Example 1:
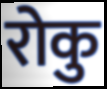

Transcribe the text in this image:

रोकु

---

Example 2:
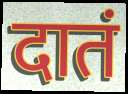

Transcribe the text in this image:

दातं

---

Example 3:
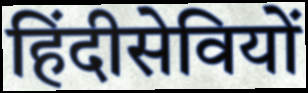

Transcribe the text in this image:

हिंदीसेवियों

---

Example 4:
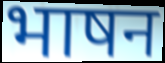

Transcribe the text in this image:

भाषन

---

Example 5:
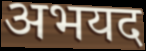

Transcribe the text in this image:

अभयद